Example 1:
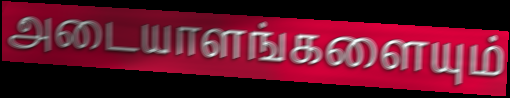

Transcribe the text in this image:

அடையாளங்களையும்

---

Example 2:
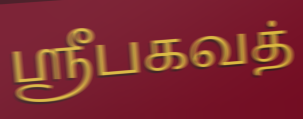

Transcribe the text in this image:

ஸ்ரீபகவத்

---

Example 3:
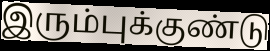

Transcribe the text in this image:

இரும்புக்குண்டு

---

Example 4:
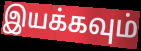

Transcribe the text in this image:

இயக்கவும்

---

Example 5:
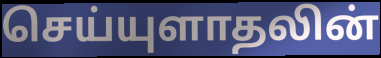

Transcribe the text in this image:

செய்யுளாதலின்